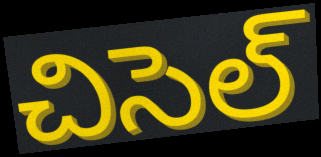
చిసెల్